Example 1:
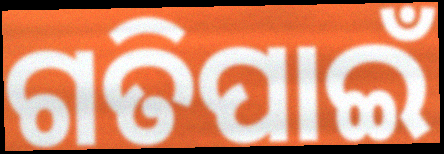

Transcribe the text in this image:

ଗତିପାଇଁ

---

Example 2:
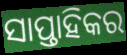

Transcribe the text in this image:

ସାପ୍ତାହିକର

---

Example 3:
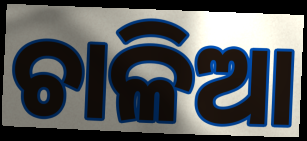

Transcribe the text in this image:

ଚାଳିଆ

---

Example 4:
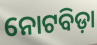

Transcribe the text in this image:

ନୋଟବିଡ଼ା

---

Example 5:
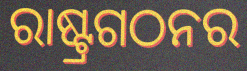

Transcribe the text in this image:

ରାଷ୍ଟ୍ରଗଠନର